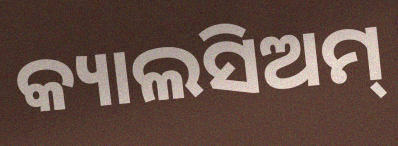
କ୍ୟାଲସିଅମ୍